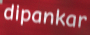
dipankar